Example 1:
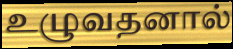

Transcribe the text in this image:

உழுவதனால்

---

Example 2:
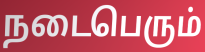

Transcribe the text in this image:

நடைபெரும்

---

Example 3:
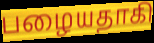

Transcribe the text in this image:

பழையதாகி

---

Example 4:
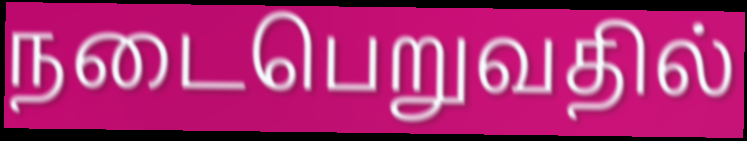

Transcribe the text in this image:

நடைபெறுவதில்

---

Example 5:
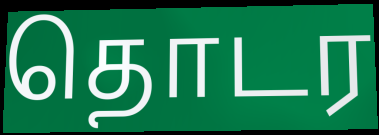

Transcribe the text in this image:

தொடர